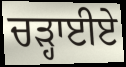
ਚੜ੍ਹਾਈਏ